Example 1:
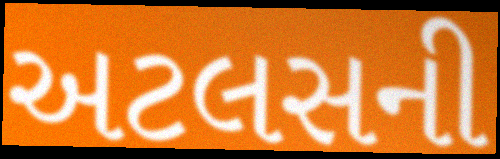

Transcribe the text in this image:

અટલસની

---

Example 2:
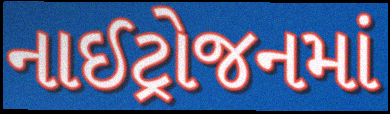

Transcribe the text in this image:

નાઈટ્રોજનમાં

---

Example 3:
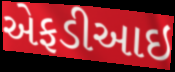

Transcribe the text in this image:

એફડીઆઇ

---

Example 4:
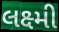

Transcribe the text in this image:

લક્ષ્મી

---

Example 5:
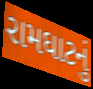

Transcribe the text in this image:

રામઘાટનું